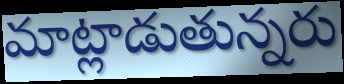
మాట్లాడుతున్నరు